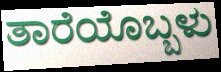
ತಾರೆಯೊಬ್ಬಳು